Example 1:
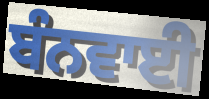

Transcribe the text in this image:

ਬੰਨਵਾਈ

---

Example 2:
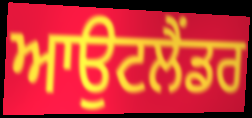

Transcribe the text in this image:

ਆਉਟਲੈਂਡਰ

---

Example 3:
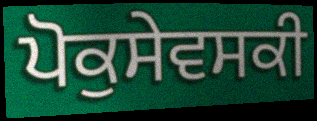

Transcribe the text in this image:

ਪੋਕੁਸੇਵਸਕੀ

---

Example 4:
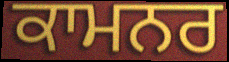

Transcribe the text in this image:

ਕਾਮਨਰ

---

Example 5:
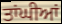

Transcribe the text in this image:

ਤਾਂਘੀਆਂ